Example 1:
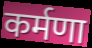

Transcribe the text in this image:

कर्मणा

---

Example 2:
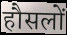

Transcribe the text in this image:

हौसलों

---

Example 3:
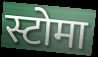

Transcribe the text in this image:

स्टोमा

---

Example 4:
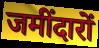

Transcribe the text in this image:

जमींदारों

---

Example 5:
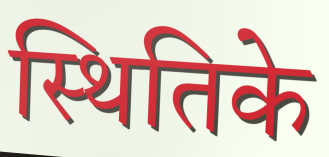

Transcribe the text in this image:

स्थितिके